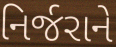
નિર્જરાને